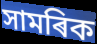
সামৰিক